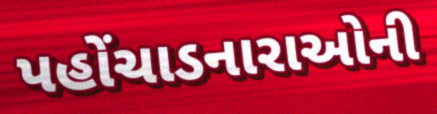
પહોંચાડનારાઓની